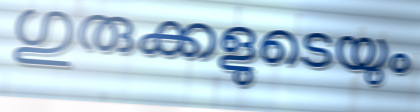
ഗുരുക്കളുടെയും